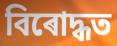
বিৰোদ্ধত